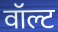
वॉल्ट